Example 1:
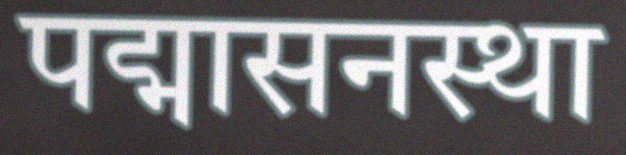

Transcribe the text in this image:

पद्मासनस्था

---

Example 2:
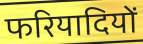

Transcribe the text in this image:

फरियादियों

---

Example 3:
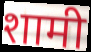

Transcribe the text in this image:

शामी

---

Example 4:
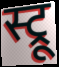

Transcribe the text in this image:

स्ट्रू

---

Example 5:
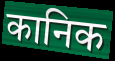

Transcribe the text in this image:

कानिक